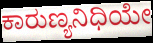
ಕಾರುಣ್ಯನಿಧಿಯೇ